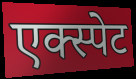
एक्स्पेट